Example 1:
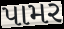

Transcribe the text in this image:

પામર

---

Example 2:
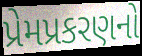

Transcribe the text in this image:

પ્રેમપ્રકરણનો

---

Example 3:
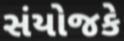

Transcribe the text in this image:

સંયોજકે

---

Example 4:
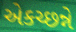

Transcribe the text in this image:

એકચ્છન્ને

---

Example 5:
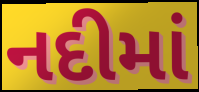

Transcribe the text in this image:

નદીમાં